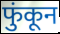
फुंकून